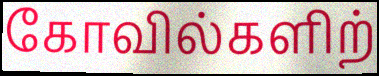
கோவில்களிற்